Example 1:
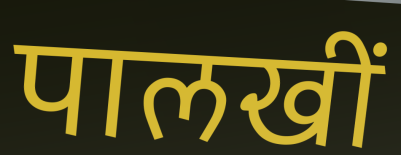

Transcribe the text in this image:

पालखीं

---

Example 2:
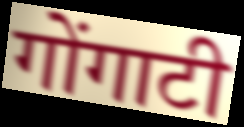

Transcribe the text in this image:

गोंगाटी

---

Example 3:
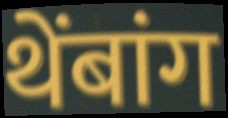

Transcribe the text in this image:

थेंबांग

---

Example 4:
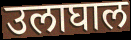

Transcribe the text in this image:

उलाघाल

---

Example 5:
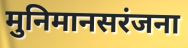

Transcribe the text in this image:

मुनिमानसरंजना